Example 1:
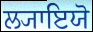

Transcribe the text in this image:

ਲ੍ਯਾਇਯੋ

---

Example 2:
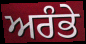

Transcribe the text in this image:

ਅਰੰਭੇ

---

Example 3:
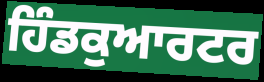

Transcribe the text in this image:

ਹਿੰਡਕੁਆਰਟਰ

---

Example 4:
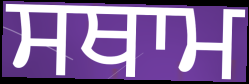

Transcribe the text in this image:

ਸਥਾਮ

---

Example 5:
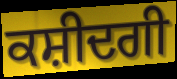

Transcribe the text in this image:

ਕਸ਼ੀਦਗੀ